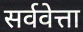
सर्ववेत्ता